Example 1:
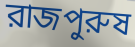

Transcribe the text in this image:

রাজপুরুষ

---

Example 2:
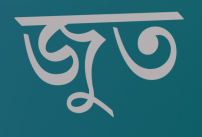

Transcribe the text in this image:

জুত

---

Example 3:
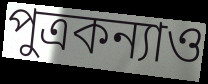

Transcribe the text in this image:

পুত্রকন্যাও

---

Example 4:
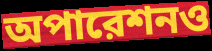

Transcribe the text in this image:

অপারেশনও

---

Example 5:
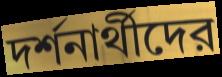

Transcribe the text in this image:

দর্শনার্থীদের